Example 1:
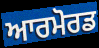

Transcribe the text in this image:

ਆਰਮੋਰਡ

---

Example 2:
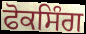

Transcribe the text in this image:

ਫੋਕਸਿੰਗ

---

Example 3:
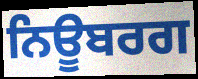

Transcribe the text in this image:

ਨਿਊਬਰਗ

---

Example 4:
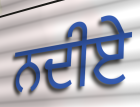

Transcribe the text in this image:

ਨਦੀਏ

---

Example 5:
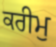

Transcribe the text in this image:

ਕਰੀਮੁ